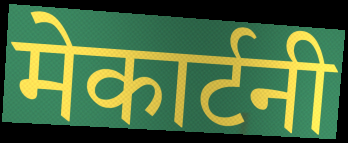
मेकार्टनी